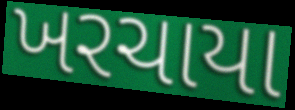
ખરચાયા